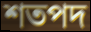
শতপদ